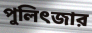
পুলিৎজার